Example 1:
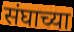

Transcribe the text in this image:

संघाच्या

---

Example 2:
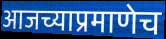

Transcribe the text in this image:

आजच्याप्रमाणेच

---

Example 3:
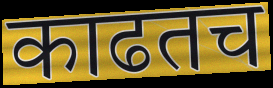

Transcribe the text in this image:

काढतच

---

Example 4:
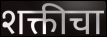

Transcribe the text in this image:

शक्तीचा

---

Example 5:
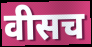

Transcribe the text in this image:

वीसच